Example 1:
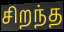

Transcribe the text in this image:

சிறந்த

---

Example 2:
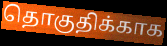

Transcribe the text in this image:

தொகுதிக்காக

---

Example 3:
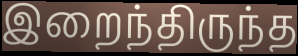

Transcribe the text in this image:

இறைந்திருந்த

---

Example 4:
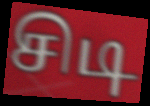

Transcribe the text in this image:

சிடி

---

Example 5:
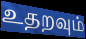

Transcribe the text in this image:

உதறவும்